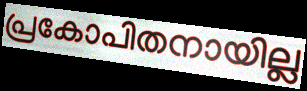
പ്രകോപിതനായില്ല